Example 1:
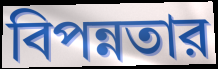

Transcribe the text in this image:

বিপন্নতার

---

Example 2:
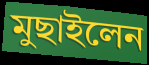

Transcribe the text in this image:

মুছাইলেন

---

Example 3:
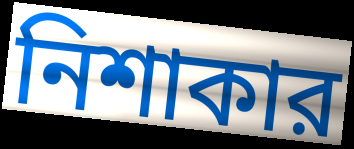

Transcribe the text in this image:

নিশাকার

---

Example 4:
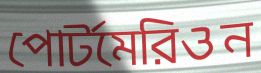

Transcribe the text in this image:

পোর্টমেরিওন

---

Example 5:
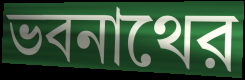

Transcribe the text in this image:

ভবনাথের